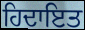
ਹਿਦਾਇਤ